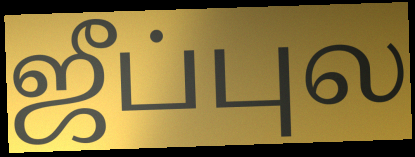
ஜீப்புல